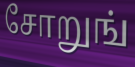
சோறுங்